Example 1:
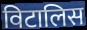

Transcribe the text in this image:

विटालिस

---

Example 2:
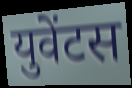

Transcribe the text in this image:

युवेंटस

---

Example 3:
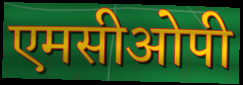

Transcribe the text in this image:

एमसीओपी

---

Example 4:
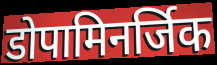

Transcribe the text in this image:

डोपामिनर्जिक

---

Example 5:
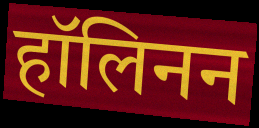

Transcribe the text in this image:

हॉलिनन